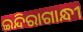
ଇନ୍ଦିରାଗାନ୍ଧୀ